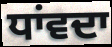
ਧਾਂਵਦਾ